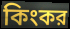
কিংকর